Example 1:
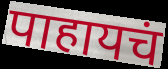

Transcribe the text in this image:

पाहायचं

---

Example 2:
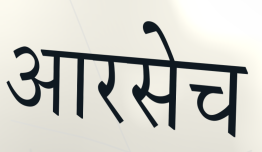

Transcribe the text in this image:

आरसेच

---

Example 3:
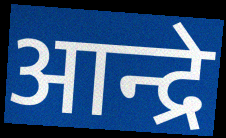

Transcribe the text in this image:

आन्द्रे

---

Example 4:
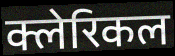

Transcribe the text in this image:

क्लेरिकल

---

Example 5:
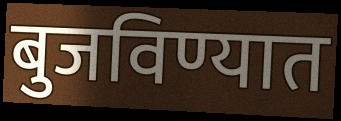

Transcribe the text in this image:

बुजविण्यात